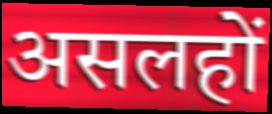
असलहों